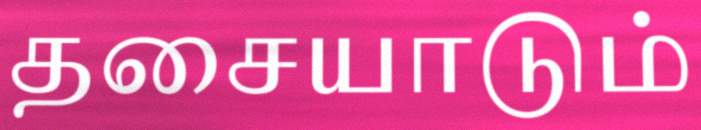
தசையாடும்